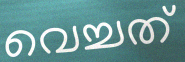
വെച്ചത്